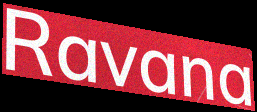
Ravana